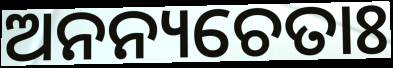
ଅନନ୍ୟଚେତାଃ